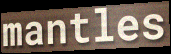
mantles